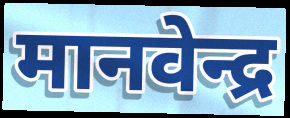
मानवेन्द्र